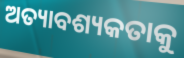
ଅତ୍ୟାବଶ୍ୟକତାକୁ